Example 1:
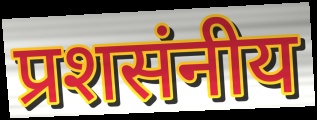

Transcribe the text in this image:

प्रशसंनीय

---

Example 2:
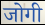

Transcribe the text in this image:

जोगी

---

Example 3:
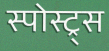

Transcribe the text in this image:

स्पोस्ट्र्स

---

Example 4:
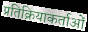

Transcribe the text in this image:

प्रतिक्रियाकर्ताओं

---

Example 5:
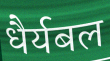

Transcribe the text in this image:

धैर्यबल